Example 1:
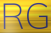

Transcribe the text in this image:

RG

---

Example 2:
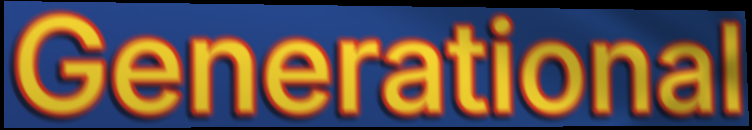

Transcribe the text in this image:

Generational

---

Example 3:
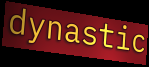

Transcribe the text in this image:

dynastic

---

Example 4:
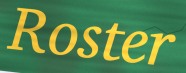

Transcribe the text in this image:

Roster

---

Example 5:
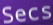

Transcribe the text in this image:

Secs